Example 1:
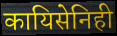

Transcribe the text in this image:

कायिसेनिही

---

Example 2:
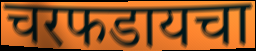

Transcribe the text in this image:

चरफडायचा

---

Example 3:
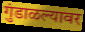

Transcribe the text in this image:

गुंडाळल्यावर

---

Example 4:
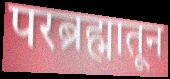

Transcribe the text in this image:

परब्रह्मातून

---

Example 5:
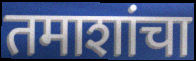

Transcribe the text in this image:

तमाशांचा